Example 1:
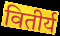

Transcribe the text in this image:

वितीर्य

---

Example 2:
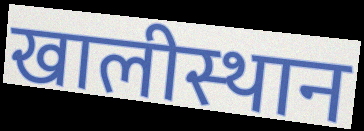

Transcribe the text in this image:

खालीस्थान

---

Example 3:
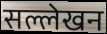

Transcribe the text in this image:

सल्लेखन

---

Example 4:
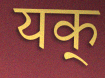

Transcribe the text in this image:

यक्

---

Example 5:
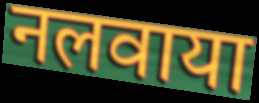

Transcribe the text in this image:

नलवाया